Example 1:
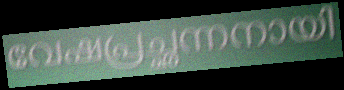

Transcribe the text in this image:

വേഷപ്രച്ഛന്നനായി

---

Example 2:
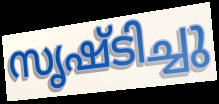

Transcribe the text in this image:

സൃഷ്ടിച്ചു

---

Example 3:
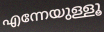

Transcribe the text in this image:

എന്നേയുള്ളൂ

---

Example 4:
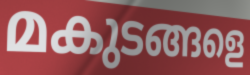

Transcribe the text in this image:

മകുടങ്ങളെ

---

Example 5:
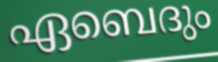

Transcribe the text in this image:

ഏബെദും